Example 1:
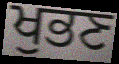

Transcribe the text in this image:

ਖੁਭਣ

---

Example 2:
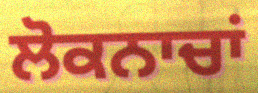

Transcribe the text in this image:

ਲੋਕਨਾਚਾਂ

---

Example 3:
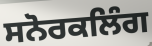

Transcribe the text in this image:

ਸਨੋਰਕਲਿੰਗ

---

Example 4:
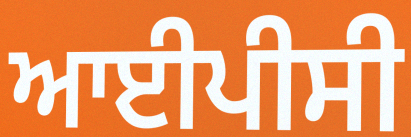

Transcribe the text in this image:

ਆਈਪੀਸੀ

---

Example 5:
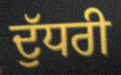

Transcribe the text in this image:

ਦੁੱਧਰੀ